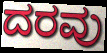
ದರವು